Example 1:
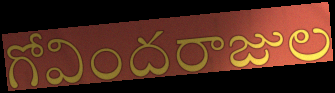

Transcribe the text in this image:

గోవిందరాజుల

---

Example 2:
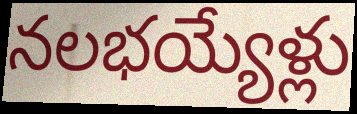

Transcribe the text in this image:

నలభయ్యేళ్లు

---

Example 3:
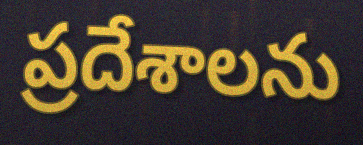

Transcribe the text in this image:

ప్రదేశాలను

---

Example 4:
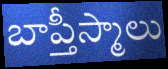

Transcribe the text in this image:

బాప్తీస్మాలు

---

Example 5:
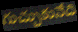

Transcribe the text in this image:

గుచ్చుకునేది